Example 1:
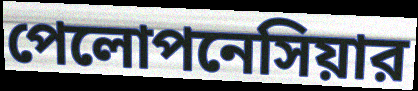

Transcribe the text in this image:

পেলোপনেসিয়ার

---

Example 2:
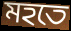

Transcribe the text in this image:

মহতে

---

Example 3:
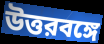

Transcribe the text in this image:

উত্তরবঙ্গে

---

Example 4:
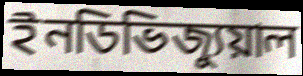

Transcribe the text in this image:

ইনডিভিজ্যুয়াল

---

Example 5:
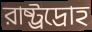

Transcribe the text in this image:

রাষ্ট্রদ্রোহ